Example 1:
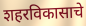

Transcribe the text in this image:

शहरविकासाचे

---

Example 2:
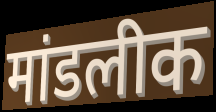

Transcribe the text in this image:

मांडलीक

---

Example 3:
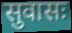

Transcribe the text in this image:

सुवासः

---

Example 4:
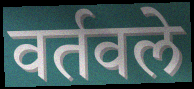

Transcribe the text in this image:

वर्तवले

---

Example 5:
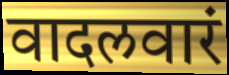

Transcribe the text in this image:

वादलवारं